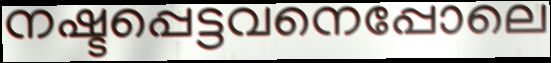
നഷ്ടപ്പെട്ടവനെപ്പോലെ